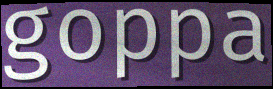
goppa